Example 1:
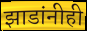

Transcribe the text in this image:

झाडांनीही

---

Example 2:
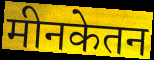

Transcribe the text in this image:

मीनकेतन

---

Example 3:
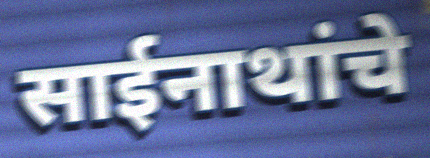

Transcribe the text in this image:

साईनाथांचे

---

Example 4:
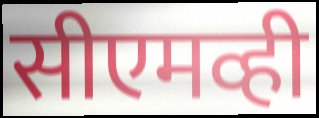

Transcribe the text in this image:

सीएमव्ही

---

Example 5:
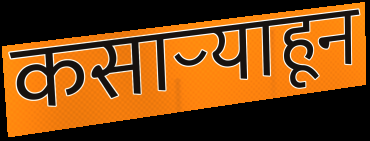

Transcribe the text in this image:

कसाऱ्याहून